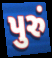
પુરું